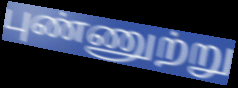
புண்ணுற்று